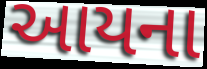
આયના